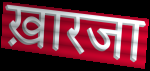
ख़ारजा